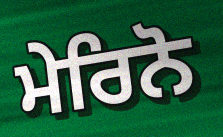
ਮੇਰਿਨੋ